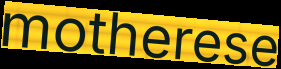
motherese